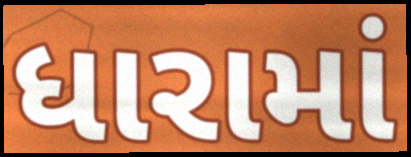
ધારામાં